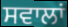
ਸਵਾਲਾਂ